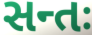
સન્તઃ